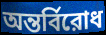
অন্তর্বিরোধ